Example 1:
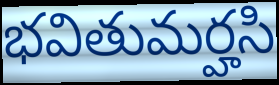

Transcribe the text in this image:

భవితుమర్హసి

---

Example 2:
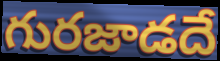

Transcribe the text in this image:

గురజాడదే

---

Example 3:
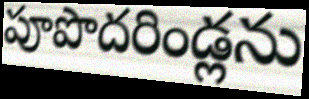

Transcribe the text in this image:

పూపొదరిండ్లను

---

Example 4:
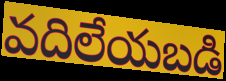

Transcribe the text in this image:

వదిలేయబడి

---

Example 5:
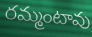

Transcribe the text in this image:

రమ్మంటావు